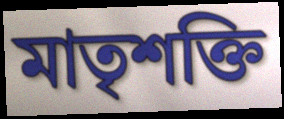
মাতৃশক্তি